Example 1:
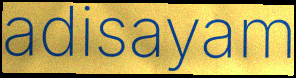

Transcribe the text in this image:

adisayam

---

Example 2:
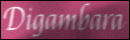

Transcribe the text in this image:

Digambara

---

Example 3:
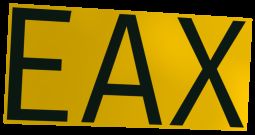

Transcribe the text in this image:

EAX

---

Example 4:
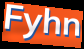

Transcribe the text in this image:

Fyhn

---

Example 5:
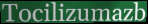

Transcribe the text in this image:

Tocilizumazb